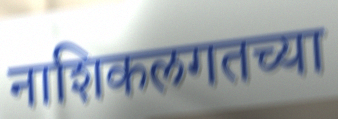
नाशिकलगतच्या